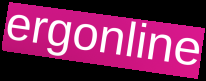
ergonline